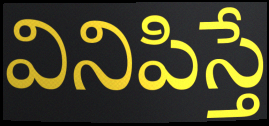
వినిపిస్తే